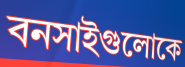
বনসাইগুলোকে